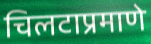
चिलटाप्रमाणे